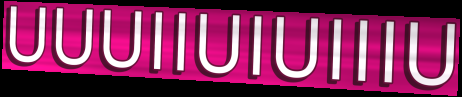
UUUIIUIUIIIU